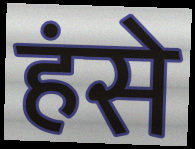
हंसे